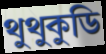
থুথুকুডি